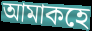
আমাকহে